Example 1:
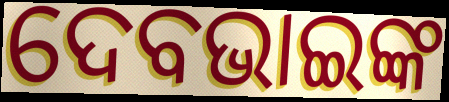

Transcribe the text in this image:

ଦେବଭାଇଙ୍କ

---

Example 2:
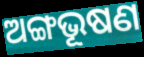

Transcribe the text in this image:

ଅଙ୍ଗଭୂଷଣ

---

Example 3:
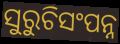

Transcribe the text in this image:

ସୁରୁଚିସଂପନ୍ନ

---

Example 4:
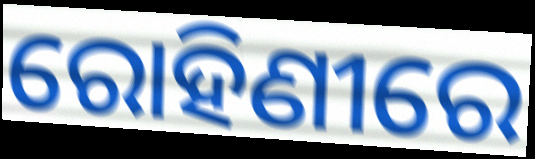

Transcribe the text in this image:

ରୋହିଣୀରେ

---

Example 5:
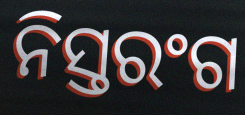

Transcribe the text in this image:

ନିସ୍ତରଂଗ